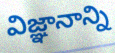
విజ్ఞానాన్ని